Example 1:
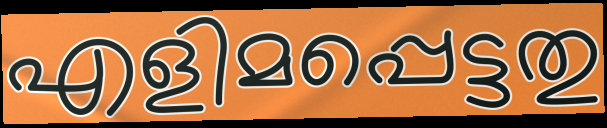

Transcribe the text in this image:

എളിമപ്പെട്ടതു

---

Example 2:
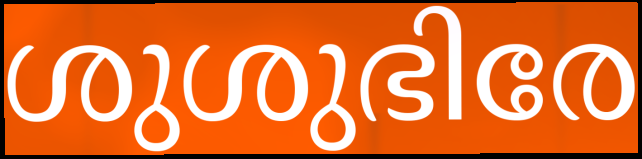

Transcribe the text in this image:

ശുശുഭിരേ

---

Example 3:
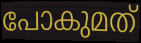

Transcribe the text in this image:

പോകുമത്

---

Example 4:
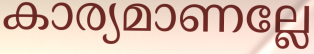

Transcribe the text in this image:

കാര്യമാണല്ലേ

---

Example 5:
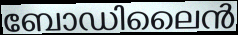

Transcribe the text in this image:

ബോഡിലൈൻ